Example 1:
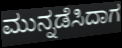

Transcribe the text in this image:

ಮುನ್ನಡೆಸಿದಾಗ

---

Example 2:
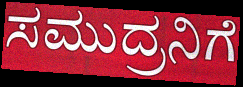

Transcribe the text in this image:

ಸಮುದ್ರನಿಗೆ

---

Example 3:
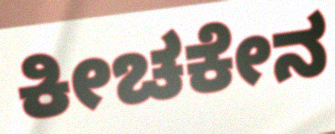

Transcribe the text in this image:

ಕೀಚಕೇನ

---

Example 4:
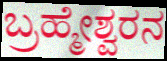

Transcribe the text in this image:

ಬ್ರಹ್ಮೇಶ್ವರನ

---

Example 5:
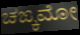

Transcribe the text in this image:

ಚಙ್ಕಮೋ